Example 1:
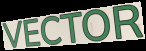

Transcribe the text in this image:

VECTOR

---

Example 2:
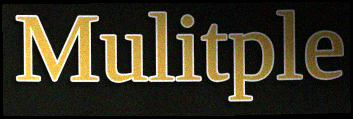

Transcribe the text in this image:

Mulitple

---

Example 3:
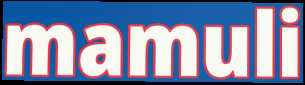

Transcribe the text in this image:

mamuli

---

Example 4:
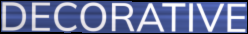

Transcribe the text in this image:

DECORATIVE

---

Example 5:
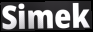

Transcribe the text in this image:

Simek